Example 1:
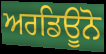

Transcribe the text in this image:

ਅਰਡਿਊਨੋ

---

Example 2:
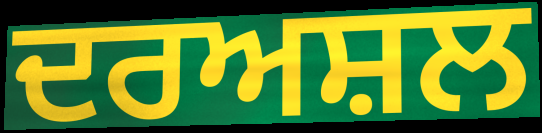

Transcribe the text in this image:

ਦਰਅਸ਼ਲ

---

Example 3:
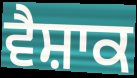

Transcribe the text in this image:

ਵੈਸ਼ਾਕ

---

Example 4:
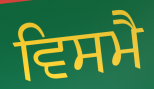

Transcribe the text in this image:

ਵਿਸਮੈ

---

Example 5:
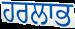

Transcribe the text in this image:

ਹਰਲਾਭ